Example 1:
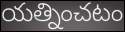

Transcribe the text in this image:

యత్నించటం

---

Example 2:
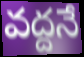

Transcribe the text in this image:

వద్దనే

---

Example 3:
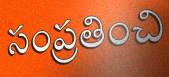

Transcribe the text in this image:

సంప్రతించి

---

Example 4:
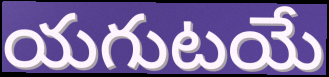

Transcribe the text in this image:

యగుటయే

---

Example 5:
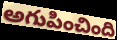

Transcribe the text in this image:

అగుపించింది